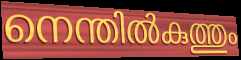
നെന്തിൽകുത്തും